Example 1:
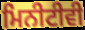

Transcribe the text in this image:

ਮਿਨੀਟੀਵੀ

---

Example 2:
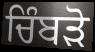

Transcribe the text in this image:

ਚਿੰਬੜੋ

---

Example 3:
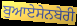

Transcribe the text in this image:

ਬੁਆਏਸੇਨਬੇਰੀ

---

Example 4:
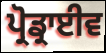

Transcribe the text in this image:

ਪ੍ਰੋਡ੍ਰਾਈਵ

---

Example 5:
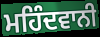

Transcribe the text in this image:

ਮਹਿੰਦਵਾਨੀ